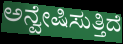
ಅನ್ವೇಷಿಸುತ್ತಿದೆ